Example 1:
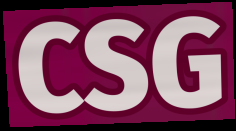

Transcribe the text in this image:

CSG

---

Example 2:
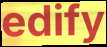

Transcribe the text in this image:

edify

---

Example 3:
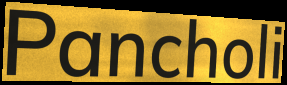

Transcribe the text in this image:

Pancholi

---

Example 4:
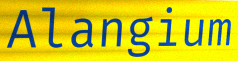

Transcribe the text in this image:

Alangium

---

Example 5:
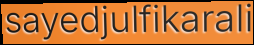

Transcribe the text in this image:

sayedjulfikarali